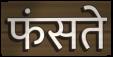
फंसते